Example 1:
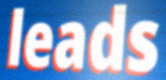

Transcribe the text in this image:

leads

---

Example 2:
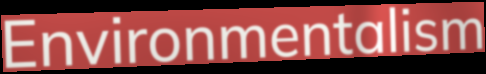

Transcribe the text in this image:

Environmentalism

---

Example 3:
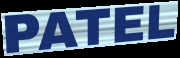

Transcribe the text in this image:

PATEL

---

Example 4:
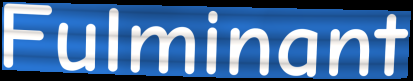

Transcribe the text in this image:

Fulminant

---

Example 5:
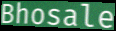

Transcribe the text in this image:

Bhosale